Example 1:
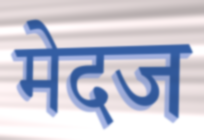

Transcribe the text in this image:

मेदज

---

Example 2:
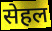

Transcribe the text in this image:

सेहल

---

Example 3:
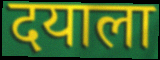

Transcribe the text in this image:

दयाला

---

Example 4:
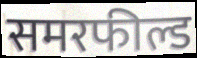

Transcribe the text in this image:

समरफील्ड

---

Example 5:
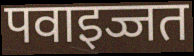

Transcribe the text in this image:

पवाइज्जत